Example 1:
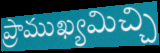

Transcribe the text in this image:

ప్రాముఖ్యమిచ్చి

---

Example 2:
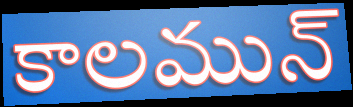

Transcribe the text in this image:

కాలమున్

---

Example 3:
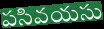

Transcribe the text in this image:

పసివయసు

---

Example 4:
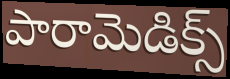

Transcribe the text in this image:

పారామెడిక్స్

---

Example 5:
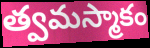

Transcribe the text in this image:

త్వమస్మాకం